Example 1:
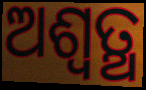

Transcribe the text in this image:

ଅଶ୍ବତ୍ଥ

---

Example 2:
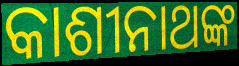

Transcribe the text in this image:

କାଶୀନାଥଙ୍କ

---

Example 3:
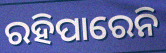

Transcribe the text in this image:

ରହିପାରେନି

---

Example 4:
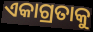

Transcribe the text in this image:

ଏକାଗ୍ରତାକୁ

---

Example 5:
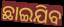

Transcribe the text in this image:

ଛାଇଯିବ